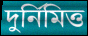
দুর্নিমিত্ত